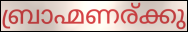
ബ്രാഹ്മണര്ക്കു